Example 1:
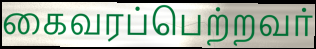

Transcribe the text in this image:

கைவரப்பெற்றவர்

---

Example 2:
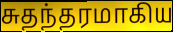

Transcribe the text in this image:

சுதந்தரமாகிய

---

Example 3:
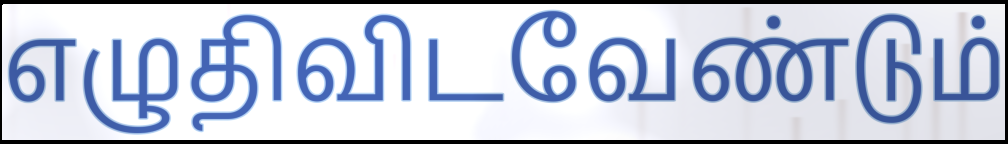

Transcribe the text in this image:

எழுதிவிடவேண்டும்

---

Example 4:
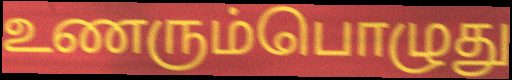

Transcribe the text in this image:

உணரும்பொழுது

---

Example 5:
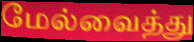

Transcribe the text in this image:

மேல்வைத்து